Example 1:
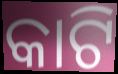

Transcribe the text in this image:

କାଟି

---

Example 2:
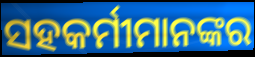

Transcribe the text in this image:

ସହକର୍ମୀମାନଙ୍କର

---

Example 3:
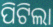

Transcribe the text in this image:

ପିଟିଲା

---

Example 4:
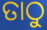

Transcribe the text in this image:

ତାଠୁ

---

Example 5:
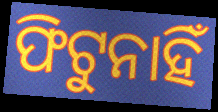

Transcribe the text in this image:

ଫିଟୁନାହିଁ